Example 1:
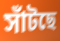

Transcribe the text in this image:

সাঁটছে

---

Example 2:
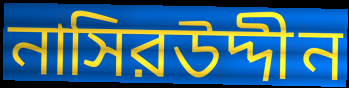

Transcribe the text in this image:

নাসিরউদ্দীন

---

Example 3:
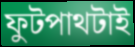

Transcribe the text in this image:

ফুটপাথটাই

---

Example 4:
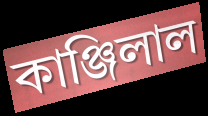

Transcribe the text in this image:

কাঞ্জিলাল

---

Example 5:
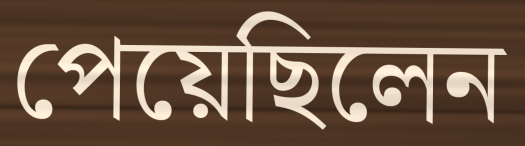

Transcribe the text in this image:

পেয়েছিলেন